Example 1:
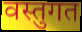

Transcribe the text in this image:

वस्तुगत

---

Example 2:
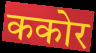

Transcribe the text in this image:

ककोर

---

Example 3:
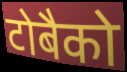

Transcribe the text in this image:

टोबैको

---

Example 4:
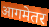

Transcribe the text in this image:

आगमेतर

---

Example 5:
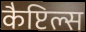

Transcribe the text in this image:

कैप्टिल्स